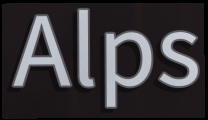
Alps